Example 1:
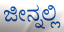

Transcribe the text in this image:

ಜೀನ್ನಲ್ಲಿ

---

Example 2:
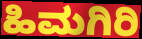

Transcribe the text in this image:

ಹಿಮಗಿರಿ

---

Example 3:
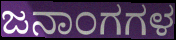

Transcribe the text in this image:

ಜನಾಂಗಗಳ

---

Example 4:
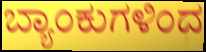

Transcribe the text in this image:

ಬ್ಯಾಂಕುಗಳಿಂದ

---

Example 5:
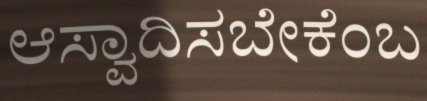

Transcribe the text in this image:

ಆಸ್ವಾದಿಸಬೇಕೆಂಬ